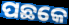
ପଛକେ